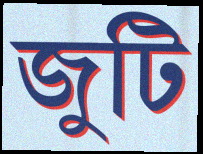
জুটি